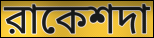
রাকেশদা